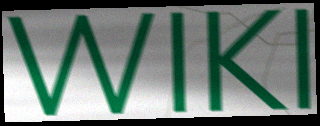
WIKI